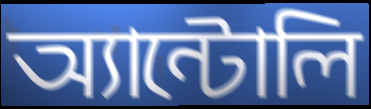
অ্যান্টোলি